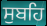
ਸੁਬਹਿ